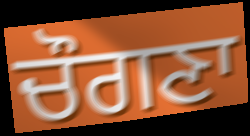
ਚੌਗਣਾ